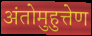
अंतोमुहुत्तेण